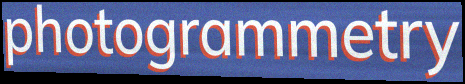
photogrammetry